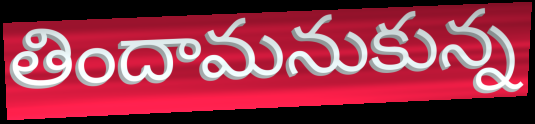
తిందామనుకున్న